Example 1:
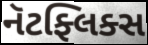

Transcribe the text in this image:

નૅટફ્લિક્સ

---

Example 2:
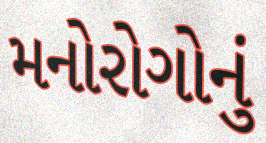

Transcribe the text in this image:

મનોરોગોનું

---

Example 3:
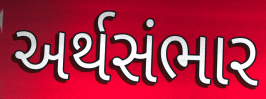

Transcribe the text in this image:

અર્થસંભાર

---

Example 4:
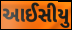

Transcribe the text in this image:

આઈસીયુ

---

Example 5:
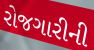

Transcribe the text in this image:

રોજગારીની